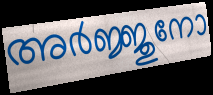
അർജ്ജുനോ